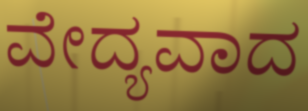
ವೇದ್ಯವಾದ